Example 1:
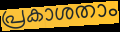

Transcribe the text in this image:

പ്രകാശതാം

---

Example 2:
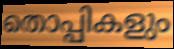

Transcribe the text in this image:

തൊപ്പികളും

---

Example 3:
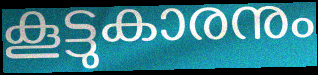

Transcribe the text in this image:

കൂട്ടുകാരനും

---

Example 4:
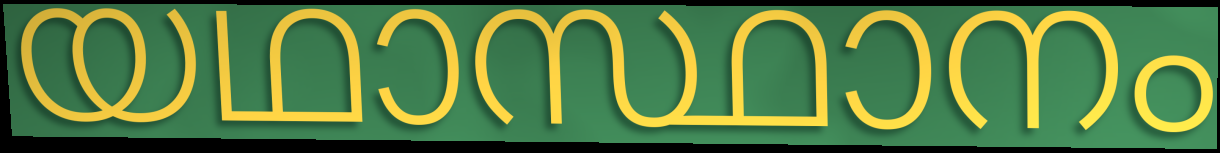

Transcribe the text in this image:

യഥാസ്ഥാനം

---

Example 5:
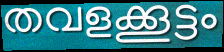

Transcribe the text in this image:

തവളക്കൂട്ടം